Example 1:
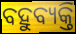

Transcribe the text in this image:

ବହୁବ୍ୟକ୍ତି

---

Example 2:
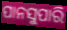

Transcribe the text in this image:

ପାନସୁପାରି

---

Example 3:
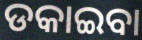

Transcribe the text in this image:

ଡକାଇବା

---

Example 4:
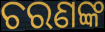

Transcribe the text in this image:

ଚରଣଙ୍କ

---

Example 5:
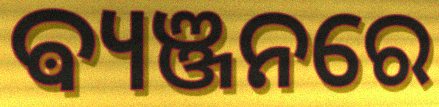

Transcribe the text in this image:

ଵ୍ୟଞ୍ଜନରେ